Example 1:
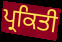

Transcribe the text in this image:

ਪ੍ਰਕਿਤੀ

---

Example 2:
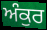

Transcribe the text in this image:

ਅੰਕੁਰ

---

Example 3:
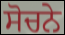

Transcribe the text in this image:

ਸੋਚਨੇ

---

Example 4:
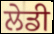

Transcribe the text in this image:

ਲੇਡੀ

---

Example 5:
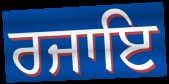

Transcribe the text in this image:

ਰਜਾਇ